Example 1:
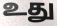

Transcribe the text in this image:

உது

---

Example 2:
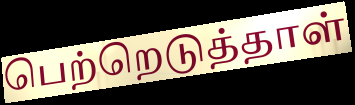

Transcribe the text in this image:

பெற்றெடுத்தாள்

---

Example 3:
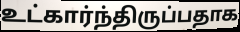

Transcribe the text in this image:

உட்கார்ந்திருப்பதாக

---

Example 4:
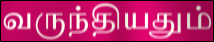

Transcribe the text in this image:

வருந்தியதும்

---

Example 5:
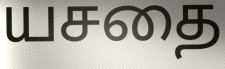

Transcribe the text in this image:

யசதை